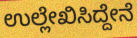
ಉಲ್ಲೇಖಿಸಿದ್ದೇನೆ